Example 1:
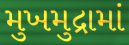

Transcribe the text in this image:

મુખમુદ્રામાં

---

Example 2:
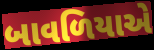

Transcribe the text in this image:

બાવળિયાએ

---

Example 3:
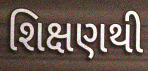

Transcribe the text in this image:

શિક્ષણથી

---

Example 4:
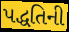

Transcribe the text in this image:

પદ્ધતિની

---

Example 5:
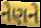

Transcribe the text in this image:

નેણને